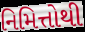
નિમિત્તોથી